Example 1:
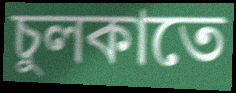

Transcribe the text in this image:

চুলকাতে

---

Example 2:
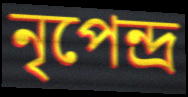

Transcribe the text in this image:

নৃপেন্দ্র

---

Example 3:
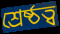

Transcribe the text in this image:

শ্রেষ্ঠত্ব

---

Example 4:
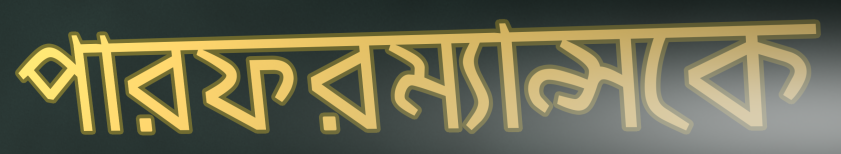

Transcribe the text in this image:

পারফরম্যান্সকে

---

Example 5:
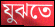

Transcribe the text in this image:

যুঝতে